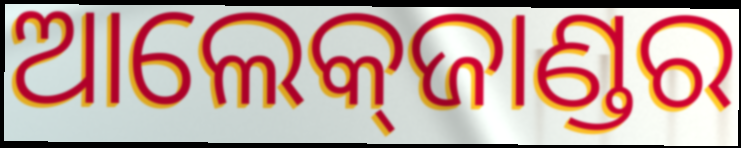
ଆଲେକ୍‌ଜାଣ୍ଡର